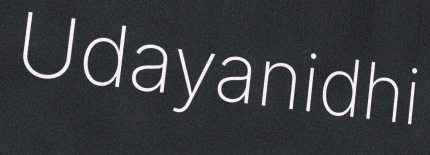
Udayanidhi